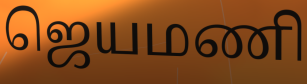
ஜெயமணி